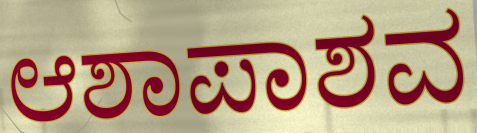
ಆಶಾಪಾಶವ